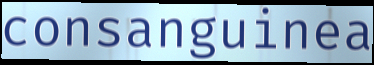
consanguinea